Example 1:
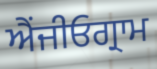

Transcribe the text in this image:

ਐਂਜੀਓਗ੍ਰਾਮ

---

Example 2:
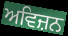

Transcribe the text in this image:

ਅਵਿਜ਼ਨ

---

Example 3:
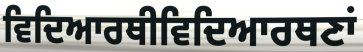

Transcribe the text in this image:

ਵਿਦਿਆਰਥੀਵਿਦਿਆਰਥਣਾਂ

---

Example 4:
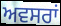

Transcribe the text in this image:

ਅਵਸਰਾਂ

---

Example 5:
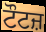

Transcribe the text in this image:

ਟੌਟਜ਼